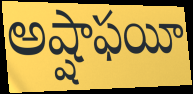
అష్షాఫయీ